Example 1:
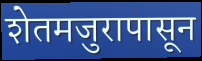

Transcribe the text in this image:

शेतमजुरापासून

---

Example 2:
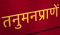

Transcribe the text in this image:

तनुमनप्राणें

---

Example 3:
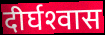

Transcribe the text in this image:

दीर्घश्वास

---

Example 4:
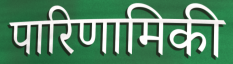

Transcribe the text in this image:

पारिणामिकी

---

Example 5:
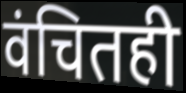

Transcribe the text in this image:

वंचितही